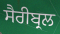
ਸੈਰੀਬ੍ਰਲ